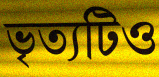
ভৃত্যটিও